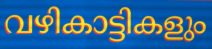
വഴികാട്ടികളും